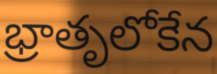
భ్రాతృలోకేన